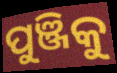
ପୁଞ୍ଜିକୁ